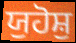
ਯੁਹੋਸ਼ੁ